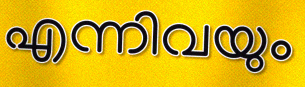
എന്നിവയും